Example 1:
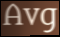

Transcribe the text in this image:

Avg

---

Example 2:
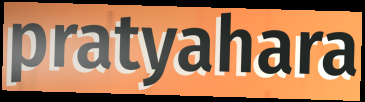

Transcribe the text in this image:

pratyahara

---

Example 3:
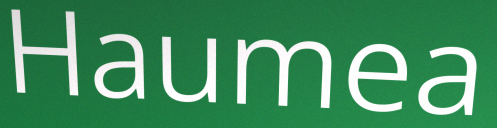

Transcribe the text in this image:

Haumea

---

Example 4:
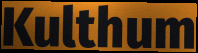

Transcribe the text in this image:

Kulthum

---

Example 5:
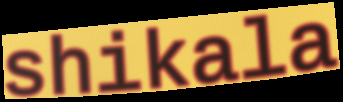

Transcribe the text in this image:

shikala